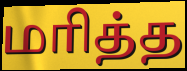
மரித்த